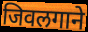
जिवलगाने